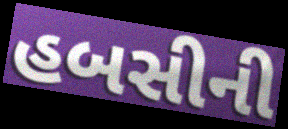
હબસીની